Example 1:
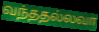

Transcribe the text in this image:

வந்ததல்லவா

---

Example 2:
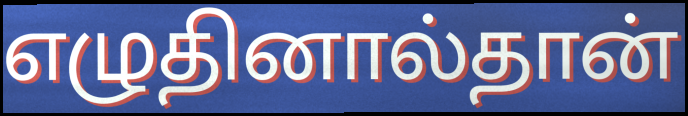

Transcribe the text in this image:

எழுதினால்தான்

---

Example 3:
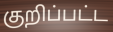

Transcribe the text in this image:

குறிப்பட்ட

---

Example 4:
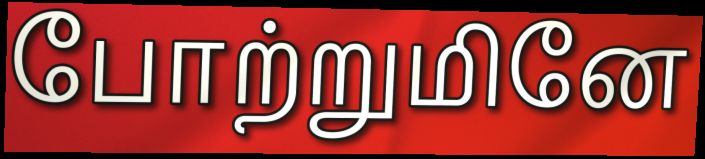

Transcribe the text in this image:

போற்றுமினே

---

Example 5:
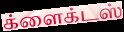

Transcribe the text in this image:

க்ளைக்டஸ்